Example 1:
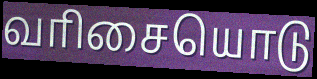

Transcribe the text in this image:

வரிசையொடு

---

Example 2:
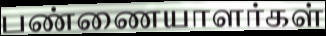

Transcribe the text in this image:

பண்ணையாளர்கள்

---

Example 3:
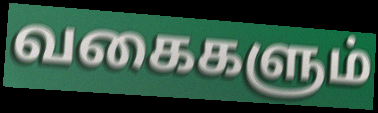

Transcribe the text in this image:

வகைகளும்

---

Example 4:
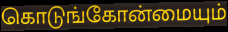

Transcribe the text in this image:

கொடுங்கோன்மையும்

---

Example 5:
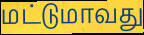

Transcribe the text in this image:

மட்டுமாவது